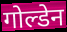
गोल्डेन